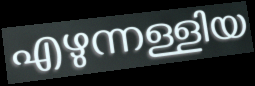
എഴുന്നള്ളിയ